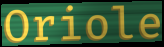
Oriole